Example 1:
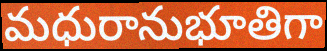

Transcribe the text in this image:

మధురానుభూతిగా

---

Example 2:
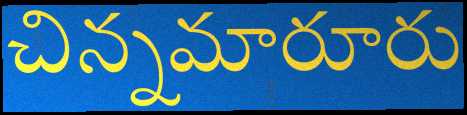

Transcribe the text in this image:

చిన్నమారూరు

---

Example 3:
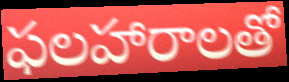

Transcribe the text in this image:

ఫలహారాలతో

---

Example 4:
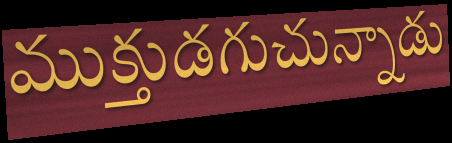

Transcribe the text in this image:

ముక్తుడగుచున్నాడు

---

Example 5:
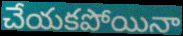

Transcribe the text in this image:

చేయకపోయినా